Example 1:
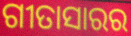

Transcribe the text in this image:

ଗୀତାସାରର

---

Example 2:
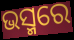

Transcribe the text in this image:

ଭସ୍ମରେ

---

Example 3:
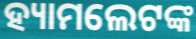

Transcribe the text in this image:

ହ୍ୟାମଲେଟଙ୍କ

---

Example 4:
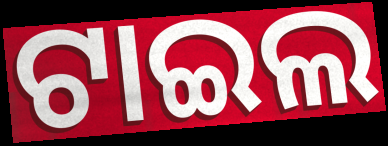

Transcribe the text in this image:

ଟାଇଲ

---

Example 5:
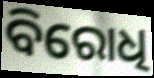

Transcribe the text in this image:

ବିରୋଧି